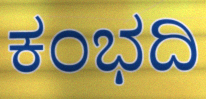
ಕಂಭದಿ